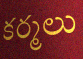
కర్మలు